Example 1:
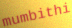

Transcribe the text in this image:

mumbithi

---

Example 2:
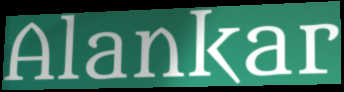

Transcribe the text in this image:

Alankar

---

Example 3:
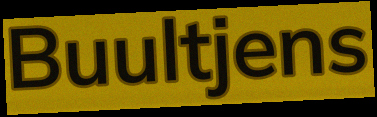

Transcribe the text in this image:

Buultjens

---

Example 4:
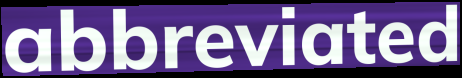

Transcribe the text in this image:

abbreviated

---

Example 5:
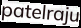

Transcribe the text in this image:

patelraju